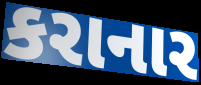
કરાનાર